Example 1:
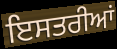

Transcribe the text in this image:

ਇਸਤਰੀਆਂ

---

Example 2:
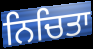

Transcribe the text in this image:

ਨਿਚਿਤਾ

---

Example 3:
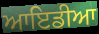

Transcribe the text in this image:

ਆਇਡੀਆ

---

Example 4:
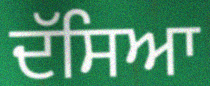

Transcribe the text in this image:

ਦੱਸਿਆ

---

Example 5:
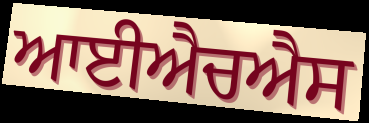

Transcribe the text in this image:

ਆਈਐਚਐਸ